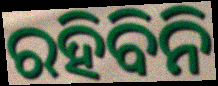
ରହିବିନି